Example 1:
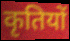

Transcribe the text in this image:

कृतियों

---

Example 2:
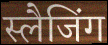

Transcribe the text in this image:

स्लैजिंग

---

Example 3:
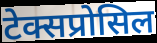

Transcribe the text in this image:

टेक्सप्रोसिल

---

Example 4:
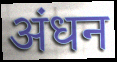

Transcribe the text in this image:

अंधन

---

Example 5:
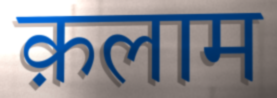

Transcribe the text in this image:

क़लाम